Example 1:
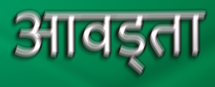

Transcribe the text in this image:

आवड्ता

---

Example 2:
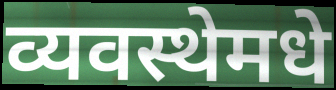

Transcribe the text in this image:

व्यवस्थेमधे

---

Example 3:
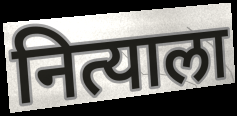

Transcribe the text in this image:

नित्याला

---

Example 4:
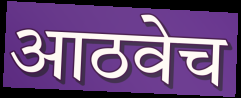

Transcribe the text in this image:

आठवेच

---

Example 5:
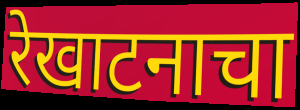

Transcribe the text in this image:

रेखाटनाचा